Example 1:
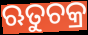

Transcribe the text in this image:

ଋତୁଚକ୍ର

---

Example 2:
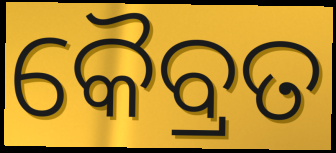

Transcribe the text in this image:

କୈବ୍ରତ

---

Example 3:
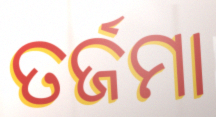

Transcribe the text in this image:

ତର୍ଜମା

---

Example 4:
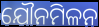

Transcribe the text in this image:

ଯୌନମିଳନ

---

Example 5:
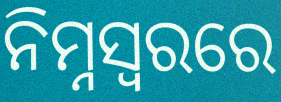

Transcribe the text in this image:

ନିମ୍ନସ୍ଵରରେ